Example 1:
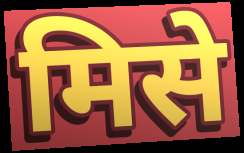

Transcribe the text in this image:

मिसे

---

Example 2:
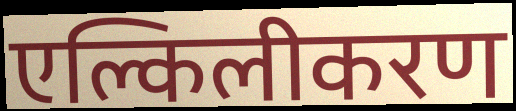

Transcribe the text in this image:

एल्किलीकरण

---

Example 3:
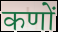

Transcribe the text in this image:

कणों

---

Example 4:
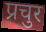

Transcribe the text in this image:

प्रचुर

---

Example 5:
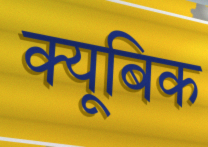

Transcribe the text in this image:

क्यूबिक